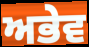
ਅਭੇਵ